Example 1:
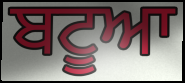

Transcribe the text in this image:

ਬਟੂਆ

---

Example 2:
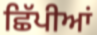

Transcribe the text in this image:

ਛਿੱਪੀਆਂ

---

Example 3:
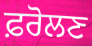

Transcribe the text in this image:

ਫ਼ਰੋਲਣ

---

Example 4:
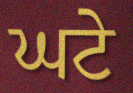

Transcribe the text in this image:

ਘਟੇ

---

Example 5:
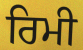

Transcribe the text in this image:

ਰਿਮੀ